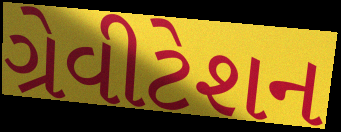
ગ્રેવીટેશન